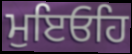
ਮੁਇਓਹਿ